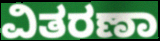
ವಿತರಣಾ